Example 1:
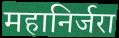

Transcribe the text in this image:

महानिर्जरा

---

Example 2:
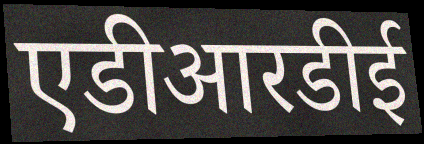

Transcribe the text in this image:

एडीआरडीई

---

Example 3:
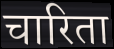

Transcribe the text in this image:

चारिता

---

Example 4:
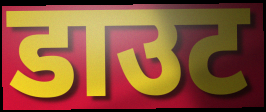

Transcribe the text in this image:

डाउट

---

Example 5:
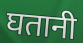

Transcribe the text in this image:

घतानी